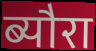
ब्यौरा